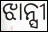
ଝାନ୍ସୀ